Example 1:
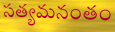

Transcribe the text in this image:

సత్యమనంతం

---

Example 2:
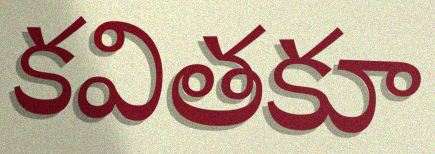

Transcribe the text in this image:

కవితకూ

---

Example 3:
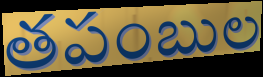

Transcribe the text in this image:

తపంబుల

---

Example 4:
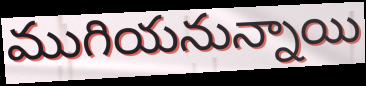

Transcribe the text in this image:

ముగియనున్నాయి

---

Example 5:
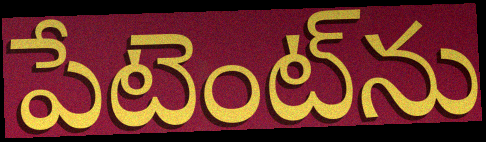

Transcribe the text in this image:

పేటెంట్‌ను